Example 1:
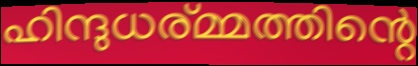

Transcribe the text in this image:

ഹിന്ദുധര്മ്മത്തിന്റെ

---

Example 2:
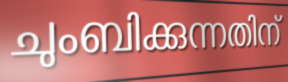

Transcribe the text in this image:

ചുംബിക്കുന്നതിന്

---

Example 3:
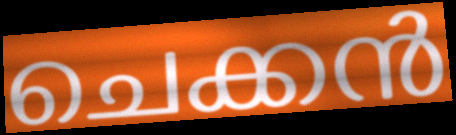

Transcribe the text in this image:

ചെക്കൻ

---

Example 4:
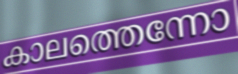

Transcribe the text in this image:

കാലത്തെന്നോ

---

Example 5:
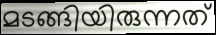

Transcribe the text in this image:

മടങ്ങിയിരുന്നത്